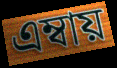
এম্বায়